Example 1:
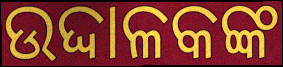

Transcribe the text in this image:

ଉଦ୍ଦାଳକଙ୍କ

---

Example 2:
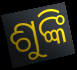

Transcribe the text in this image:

ଶୁଙ୍କି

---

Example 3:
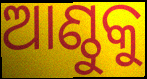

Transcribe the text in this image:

ଆଣ୍ଠୁକୁ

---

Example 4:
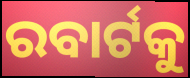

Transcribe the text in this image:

ରବାର୍ଟକୁ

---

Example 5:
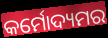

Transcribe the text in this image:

କର୍ମୋଦ୍ୟମର